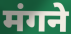
मंगने